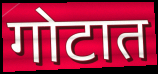
गोटात